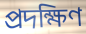
প্রদক্ষিণ